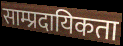
साम्प्रदायिकता